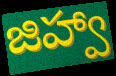
జిహ్వా